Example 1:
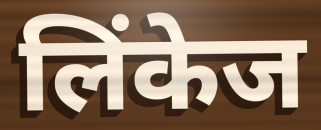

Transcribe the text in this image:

लिंकेज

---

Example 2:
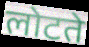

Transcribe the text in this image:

लोटते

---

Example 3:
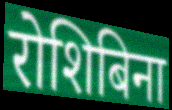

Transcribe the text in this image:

रोशिबिना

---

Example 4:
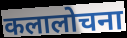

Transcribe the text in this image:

कलालोचना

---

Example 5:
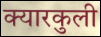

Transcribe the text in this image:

क्यारकुली